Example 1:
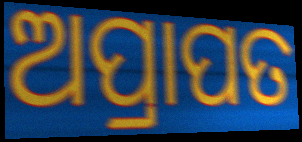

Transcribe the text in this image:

ଅପ୍ରାପତ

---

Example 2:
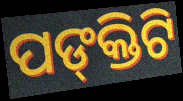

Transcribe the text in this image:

ପଙ୍‌କ୍ତିଟି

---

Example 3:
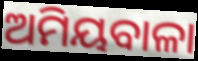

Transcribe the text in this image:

ଅମିୟବାଳା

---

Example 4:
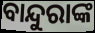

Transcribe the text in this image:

ବାନ୍ଦୁରାଙ୍କ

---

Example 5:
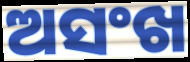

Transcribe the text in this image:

ଅସଂଖ